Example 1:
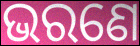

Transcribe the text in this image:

ଭରଣେ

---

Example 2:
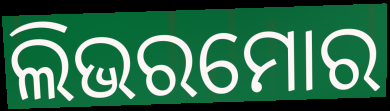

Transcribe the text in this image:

ଲିଭରମୋର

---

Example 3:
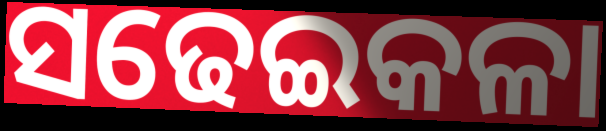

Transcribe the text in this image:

ସଢେଇକଳା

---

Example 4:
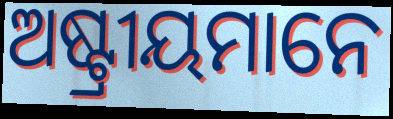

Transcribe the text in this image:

ଅଷ୍ଟ୍ରୀୟମାନେ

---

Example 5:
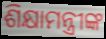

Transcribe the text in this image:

ଶିକ୍ଷାମନ୍ତ୍ରୀଙ୍କ